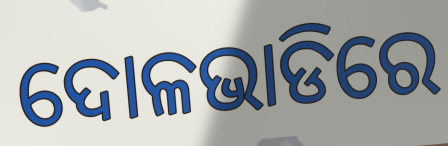
ଦୋଳଭାଡିରେ